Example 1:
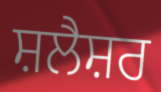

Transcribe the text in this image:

ਸ਼ਲੈਸ਼ਰ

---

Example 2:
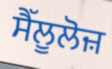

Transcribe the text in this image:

ਸੈੱਲੂਲੋਜ਼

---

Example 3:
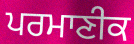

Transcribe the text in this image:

ਪਰਮਾਣੀਕ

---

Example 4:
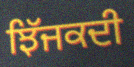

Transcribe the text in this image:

ਝਿੱਜਕਦੀ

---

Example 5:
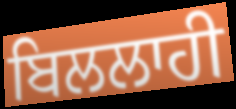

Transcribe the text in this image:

ਬਿਲਲਾਹੀ